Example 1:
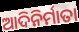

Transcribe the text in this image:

ଆଦିନିର୍ମାତା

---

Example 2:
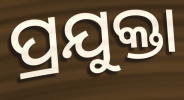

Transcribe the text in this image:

ପ୍ରଯୁକ୍ତା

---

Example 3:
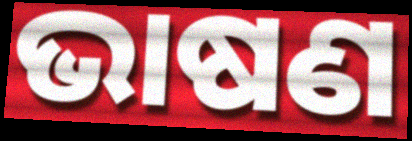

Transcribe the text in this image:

ଭାଷଣ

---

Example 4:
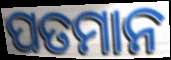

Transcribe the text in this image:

ପତମାନ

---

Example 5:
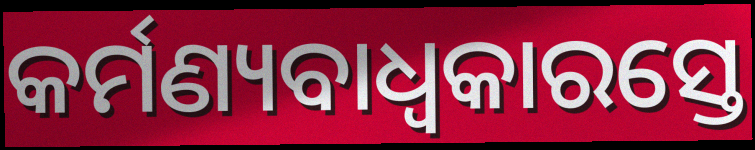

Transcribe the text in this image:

କର୍ମଣ୍ୟବାଧ୍ୱକାରସ୍ତେ